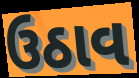
ઉઠાવ